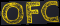
OFC